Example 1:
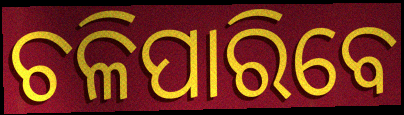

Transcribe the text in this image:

ଚଳିପାରିବେ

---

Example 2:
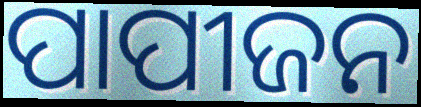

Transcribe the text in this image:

ପାପୀଜନ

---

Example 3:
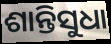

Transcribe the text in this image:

ଶାନ୍ତିସୁଧା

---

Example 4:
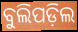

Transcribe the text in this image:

ବୁଲିପଡ଼ିଲ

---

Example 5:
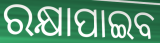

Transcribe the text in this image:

ରକ୍ଷାପାଇବ